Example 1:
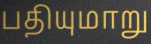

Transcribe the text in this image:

பதியுமாறு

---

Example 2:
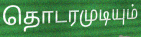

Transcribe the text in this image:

தொடரமுடியும்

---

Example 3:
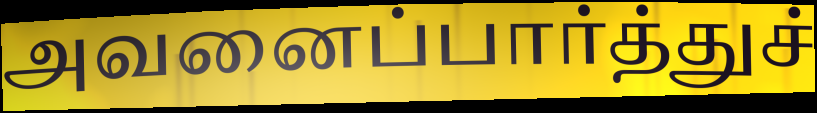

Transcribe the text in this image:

அவனைப்பார்த்துச்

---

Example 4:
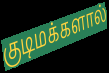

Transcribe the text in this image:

குடிமக்களால்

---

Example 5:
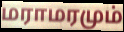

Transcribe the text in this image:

மராமரமும்